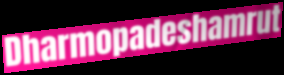
Dharmopadeshamrut